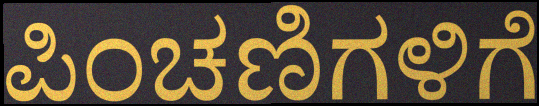
ಪಿಂಚಣಿಗಳಿಗೆ